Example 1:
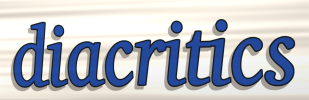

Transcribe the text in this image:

diacritics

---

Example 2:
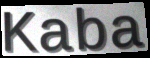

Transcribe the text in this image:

Kaba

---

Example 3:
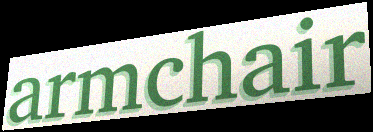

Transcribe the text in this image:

armchair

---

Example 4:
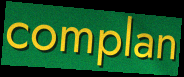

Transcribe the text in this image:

complan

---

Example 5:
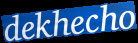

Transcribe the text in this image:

dekhecho